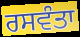
ਰਸਵੰਤਾ